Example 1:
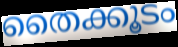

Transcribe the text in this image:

തൈക്കൂടം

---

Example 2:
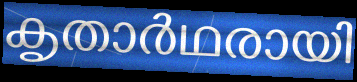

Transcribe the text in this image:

കൃതാർഥരായി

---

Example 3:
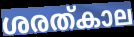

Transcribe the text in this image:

ശരത്കാല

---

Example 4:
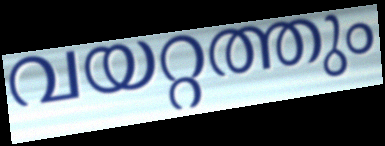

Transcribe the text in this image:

വയറ്റത്തും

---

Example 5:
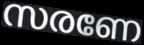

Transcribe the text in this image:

സരണേ